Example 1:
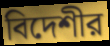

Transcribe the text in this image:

বিদেশীর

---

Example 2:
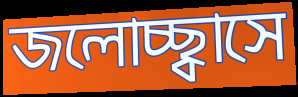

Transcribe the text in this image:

জলোচ্ছ্বাসে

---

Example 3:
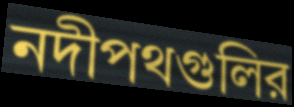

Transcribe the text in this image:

নদীপথগুলির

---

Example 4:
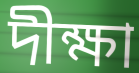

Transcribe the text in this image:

দীক্ষা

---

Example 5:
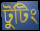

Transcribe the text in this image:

টুটিং